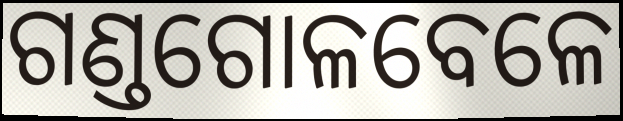
ଗଣ୍ଡଗୋଳବେଳେ